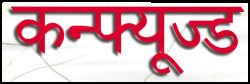
कन्फ्यूज्ड